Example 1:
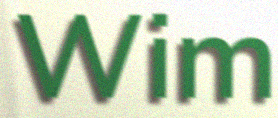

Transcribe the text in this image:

Wim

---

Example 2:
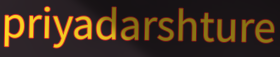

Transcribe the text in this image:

priyadarshture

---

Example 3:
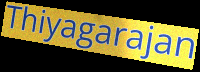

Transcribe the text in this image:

Thiyagarajan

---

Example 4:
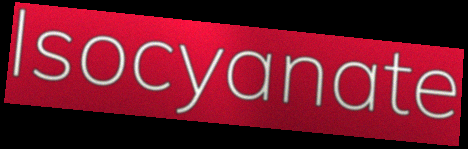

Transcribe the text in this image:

Isocyanate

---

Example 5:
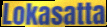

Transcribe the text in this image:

Lokasatta